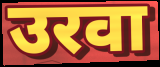
उरवा